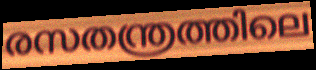
രസതന്ത്രത്തിലെ